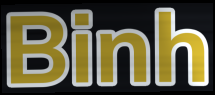
Binh